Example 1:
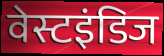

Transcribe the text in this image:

वेस्टइंडिज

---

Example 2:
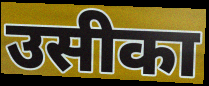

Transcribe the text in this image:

उसीका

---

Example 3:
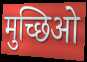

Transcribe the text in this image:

मुच्छिओ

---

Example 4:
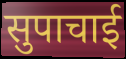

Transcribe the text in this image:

सुपाचाई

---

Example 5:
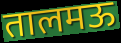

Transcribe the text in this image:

तालमऊ